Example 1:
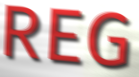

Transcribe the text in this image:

REG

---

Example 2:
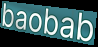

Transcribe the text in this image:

baobab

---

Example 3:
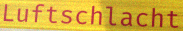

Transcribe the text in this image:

Luftschlacht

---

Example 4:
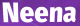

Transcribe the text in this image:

Neena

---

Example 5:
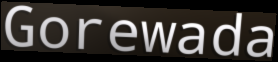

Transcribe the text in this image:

Gorewada